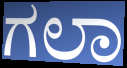
ಗಲಾ